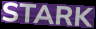
STARK